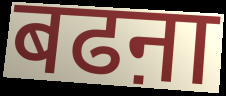
बढऩा